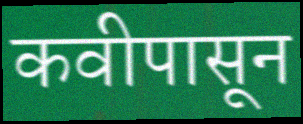
कवीपासून